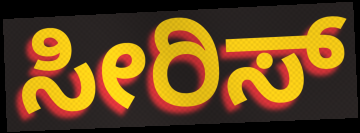
ಸೀರಿಸ್